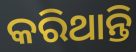
କରିଥାନ୍ତି